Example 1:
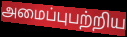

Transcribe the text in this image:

அமைப்புபற்றிய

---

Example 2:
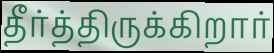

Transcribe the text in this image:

தீர்த்திருக்கிறார்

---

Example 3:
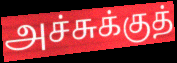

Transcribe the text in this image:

அச்சுக்குத்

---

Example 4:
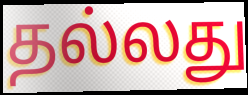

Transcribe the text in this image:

தல்லது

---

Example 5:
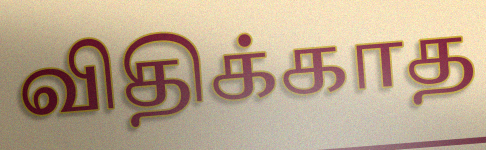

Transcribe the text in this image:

விதிக்காத